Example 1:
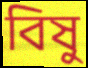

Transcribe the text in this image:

বিষু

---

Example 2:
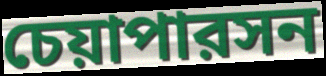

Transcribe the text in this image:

চেয়াপারসন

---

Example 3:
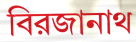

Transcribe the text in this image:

বিরজানাথ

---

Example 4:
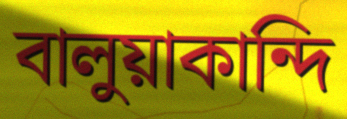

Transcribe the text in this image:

বালুয়াকান্দি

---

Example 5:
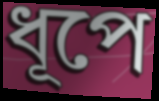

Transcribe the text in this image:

ধূপে